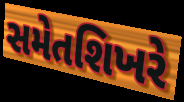
સમેતશિખરે